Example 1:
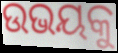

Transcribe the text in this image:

ଉଭୟକୁ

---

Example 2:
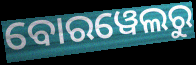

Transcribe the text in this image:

ବୋରୱେଲରୁ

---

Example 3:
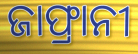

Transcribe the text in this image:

ଜାଫ୍ରାନୀ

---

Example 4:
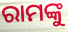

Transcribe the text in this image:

ରାମଙ୍କୁ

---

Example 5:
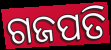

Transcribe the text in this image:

ଗଜପତି